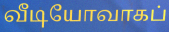
வீடியோவாகப்